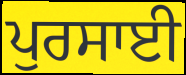
ਪੁਰਸਾਈ